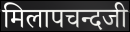
मिलापचन्दजी